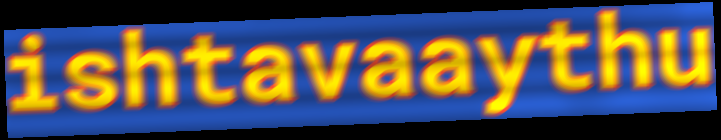
ishtavaaythu